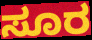
ಸೂರ